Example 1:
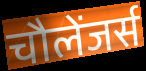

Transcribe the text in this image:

चौलेंजर्स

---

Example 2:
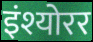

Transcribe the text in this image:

इंश्योरर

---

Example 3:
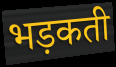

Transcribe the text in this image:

भड़कती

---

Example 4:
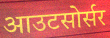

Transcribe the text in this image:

आउटसोर्सर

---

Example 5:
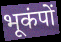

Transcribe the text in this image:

भूकंपों